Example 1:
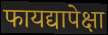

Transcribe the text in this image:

फायद्यापेक्षा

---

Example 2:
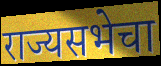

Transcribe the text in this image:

राज्यसभेचा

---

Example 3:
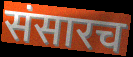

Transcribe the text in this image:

संसारच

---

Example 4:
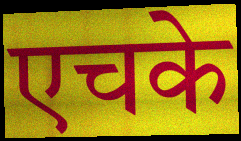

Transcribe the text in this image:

एचके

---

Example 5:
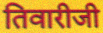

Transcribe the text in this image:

तिवारीजी